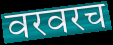
वरवरच